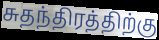
சுதந்திரத்திற்கு